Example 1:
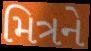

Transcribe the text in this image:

મિત્રને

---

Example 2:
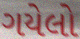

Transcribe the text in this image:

ગયેલો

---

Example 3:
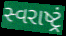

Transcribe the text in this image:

સ્વરાષ્ટ્રં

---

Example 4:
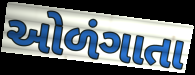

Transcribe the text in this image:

ઓળંગાતા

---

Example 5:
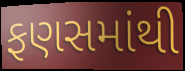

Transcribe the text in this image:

ફણસમાંથી